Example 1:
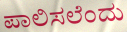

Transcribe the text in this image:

ಪಾಲಿಸಲೆಂದು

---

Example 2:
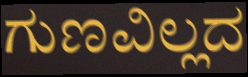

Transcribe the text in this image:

ಗುಣವಿಲ್ಲದ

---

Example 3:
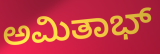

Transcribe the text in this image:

ಅಮಿತಾಭ್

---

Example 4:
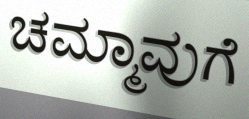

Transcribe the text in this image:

ಚಮ್ಮಾವುಗೆ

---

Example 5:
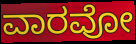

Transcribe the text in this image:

ವಾರವೋ